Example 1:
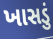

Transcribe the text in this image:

ખાસડું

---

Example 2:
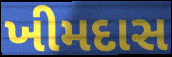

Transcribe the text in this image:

ખીમદાસ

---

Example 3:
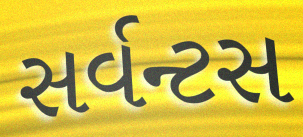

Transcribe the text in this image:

સર્વન્ટસ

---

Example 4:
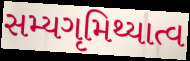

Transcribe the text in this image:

સમ્યગૃમિથ્યાત્વ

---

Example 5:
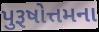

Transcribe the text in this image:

પુરૂષોત્તમના